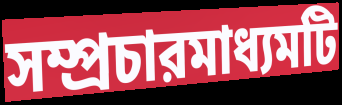
সম্প্রচারমাধ্যমটি